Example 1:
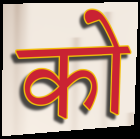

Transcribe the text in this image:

को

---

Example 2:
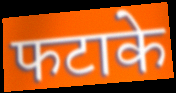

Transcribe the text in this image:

फटाके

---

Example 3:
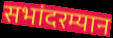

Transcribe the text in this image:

सभांदरम्यान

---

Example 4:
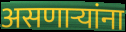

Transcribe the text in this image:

असणाऱ्यांना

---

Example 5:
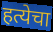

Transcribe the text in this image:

हत्येचा